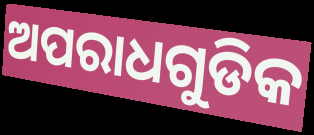
ଅପରାଧଗୁଡିକ